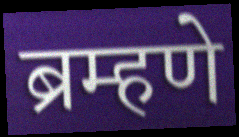
ब्रम्हणे